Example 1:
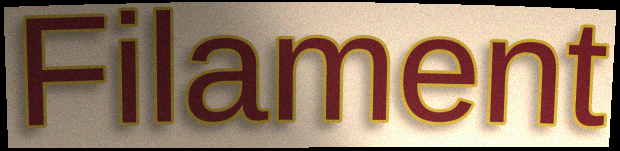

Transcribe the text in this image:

Filament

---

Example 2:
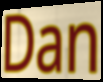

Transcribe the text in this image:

Dan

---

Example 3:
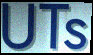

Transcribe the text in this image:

UTs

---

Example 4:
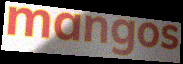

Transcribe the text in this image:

mangos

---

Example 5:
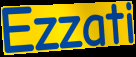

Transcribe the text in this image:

Ezzati